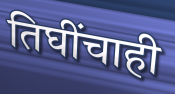
तिघींचाही